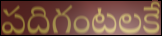
పదిగంటలకే